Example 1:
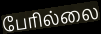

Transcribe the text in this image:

பேரில்லை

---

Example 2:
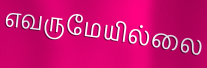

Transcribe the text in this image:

எவருமேயில்லை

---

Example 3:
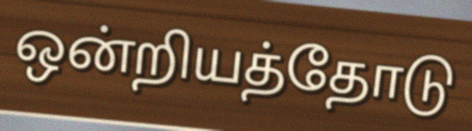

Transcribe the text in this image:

ஒன்றியத்தோடு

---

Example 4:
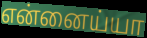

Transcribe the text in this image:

என்னைய்யா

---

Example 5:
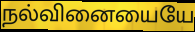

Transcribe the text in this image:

நல்வினையையே